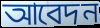
আবেদন